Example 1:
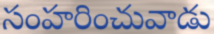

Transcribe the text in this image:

సంహరించువాడు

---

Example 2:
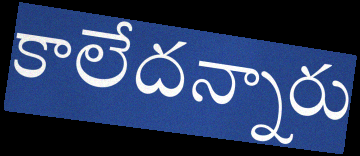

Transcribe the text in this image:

కాలేదన్నారు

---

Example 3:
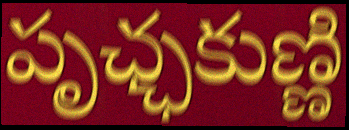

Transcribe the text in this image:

పృఛ్ఛకుణ్ణి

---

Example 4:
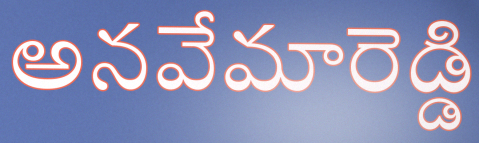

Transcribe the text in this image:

అనవేమారెడ్డి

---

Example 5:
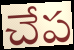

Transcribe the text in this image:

చేప